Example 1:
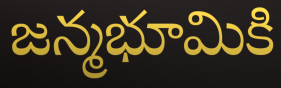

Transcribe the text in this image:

జన్మభూమికి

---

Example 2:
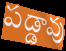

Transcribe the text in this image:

పడ్డావు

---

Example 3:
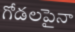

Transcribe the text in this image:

గోడలపైనా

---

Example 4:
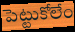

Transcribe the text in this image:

పెట్టుకోలేం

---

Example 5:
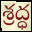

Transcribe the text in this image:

శ్రద్ధ